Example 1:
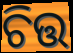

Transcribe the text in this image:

ଚିତ୍ତ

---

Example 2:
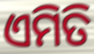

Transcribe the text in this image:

ଏମିତି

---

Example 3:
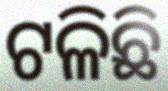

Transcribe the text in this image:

ଟଳିଛି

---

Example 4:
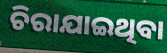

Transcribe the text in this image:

ଚିରାଯାଇଥିବା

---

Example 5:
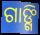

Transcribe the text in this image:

ଗାଙ୍ଗି